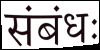
संबंधः